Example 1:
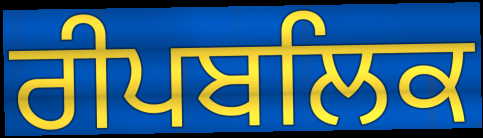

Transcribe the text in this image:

ਰੀਪਬਲਿਕ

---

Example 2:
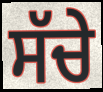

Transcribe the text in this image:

ਸੱਚੇ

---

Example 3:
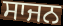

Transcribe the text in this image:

ਸਾਜਨ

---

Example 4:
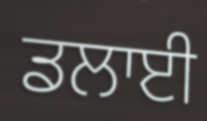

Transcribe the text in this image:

ਡਲਾਈ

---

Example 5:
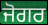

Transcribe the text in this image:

ਜੋਗਰ